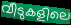
വീടുകളിലെ